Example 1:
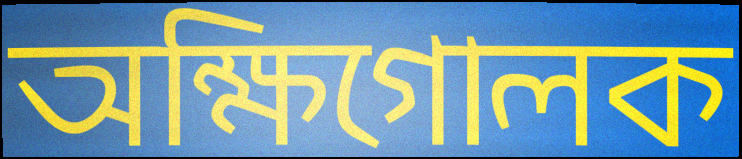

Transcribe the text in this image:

অক্ষিগোলক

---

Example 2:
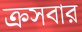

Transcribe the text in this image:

ক্রসবার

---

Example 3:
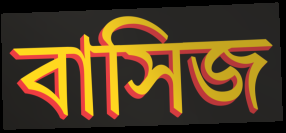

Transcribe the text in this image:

বাসিজ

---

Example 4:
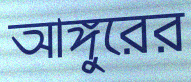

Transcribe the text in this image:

আঙ্গুরের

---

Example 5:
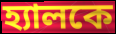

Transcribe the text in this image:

হ্যালকে